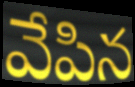
వేపిన